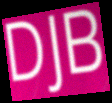
DJB